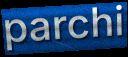
parchi